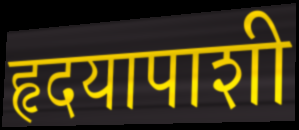
हृदयापाशी